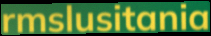
rmslusitania